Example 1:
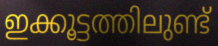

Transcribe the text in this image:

ഇക്കൂട്ടത്തിലുണ്ട്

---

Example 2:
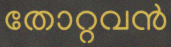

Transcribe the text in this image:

തോറ്റവൻ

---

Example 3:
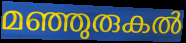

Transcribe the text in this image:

മഞ്ഞുരുകൽ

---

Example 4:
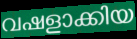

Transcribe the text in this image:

വഷളാക്കിയ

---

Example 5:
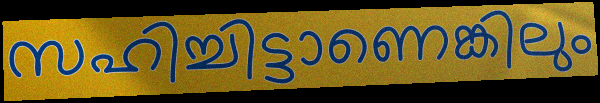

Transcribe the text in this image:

സഹിച്ചിട്ടാണെങ്കിലും